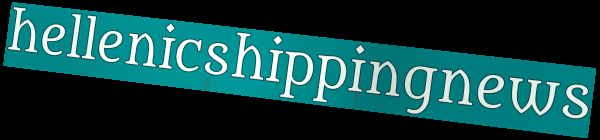
hellenicshippingnews